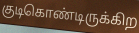
குடிகொண்டிருக்கிற